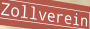
Zollverein